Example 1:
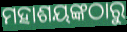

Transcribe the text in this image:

ମହାଶୟଙ୍କଠାରୁ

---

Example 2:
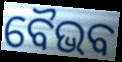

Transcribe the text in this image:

ବୈଭବ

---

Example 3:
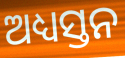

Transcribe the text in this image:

ଅଧ୍ୟସ୍ତନ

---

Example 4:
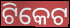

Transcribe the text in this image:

ଟିକେଟ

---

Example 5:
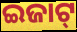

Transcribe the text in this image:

ଇଜାଟ୍